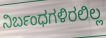
ನಿರ್ಬಂಧಗಳಿರಲಿಲ್ಲ